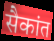
सैकांत